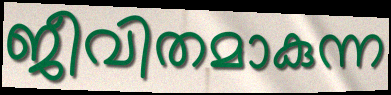
ജീവിതമാകുന്ന